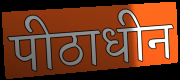
पीठाधीन